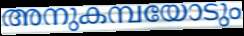
അനുകമ്പയോടും